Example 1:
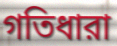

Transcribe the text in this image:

গতিধারা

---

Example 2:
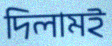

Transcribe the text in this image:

দিলামই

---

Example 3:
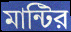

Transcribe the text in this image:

মান্টির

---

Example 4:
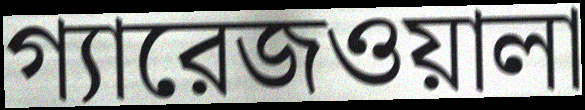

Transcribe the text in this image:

গ্যারেজওয়ালা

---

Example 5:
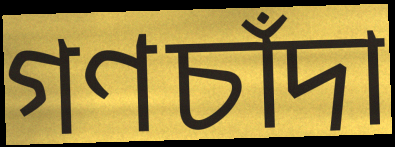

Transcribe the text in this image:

গণচাঁদা